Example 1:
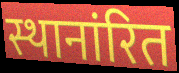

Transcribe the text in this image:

स्थानांरित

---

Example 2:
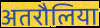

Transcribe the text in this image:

अतरौलिया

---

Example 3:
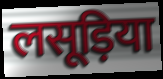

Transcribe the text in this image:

लसूड़िया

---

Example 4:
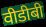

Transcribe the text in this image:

वीडीबी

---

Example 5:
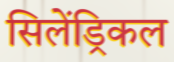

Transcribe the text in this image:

सिलेंड्रिकल